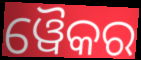
ୱୈକର